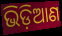
ଭିଡ଼ିଆଣ